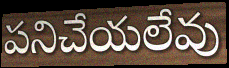
పనిచేయలేవు